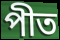
পীত